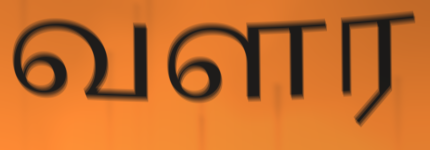
வளர